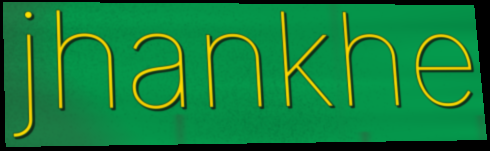
jhankhe